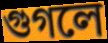
গুগলে